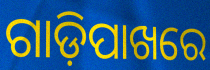
ଗାଡ଼ିପାଖରେ